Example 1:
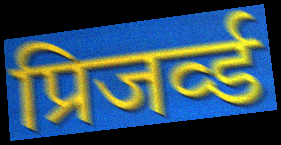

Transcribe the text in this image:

प्रिजर्व्ड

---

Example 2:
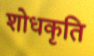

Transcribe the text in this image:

शोधकृति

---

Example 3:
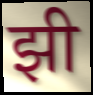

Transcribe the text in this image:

झी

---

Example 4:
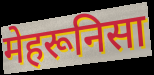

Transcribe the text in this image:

मेहरूनिसा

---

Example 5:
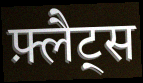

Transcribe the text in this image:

फ़्लैट्स